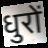
धुरों